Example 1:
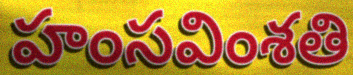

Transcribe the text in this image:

హంసవింశతి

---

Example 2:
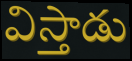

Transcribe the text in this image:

విస్తాడు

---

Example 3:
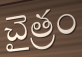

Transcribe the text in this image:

చైత్రం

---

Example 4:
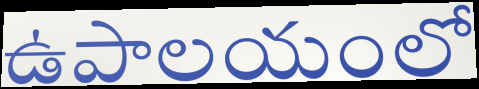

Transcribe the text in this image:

ఉపాలయంలో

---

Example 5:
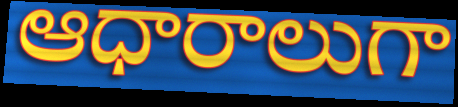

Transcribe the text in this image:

ఆధారాలుగా